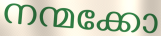
നന്മക്കോ